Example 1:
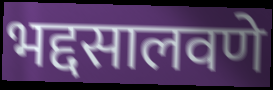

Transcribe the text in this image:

भद्दसालवणे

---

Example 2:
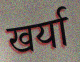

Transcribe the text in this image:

खर्या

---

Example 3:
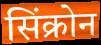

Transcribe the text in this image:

सिंक्रोन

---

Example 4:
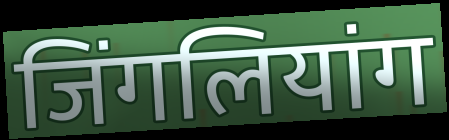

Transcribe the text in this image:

जिंगलियांग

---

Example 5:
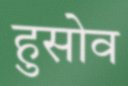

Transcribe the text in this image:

हुसोव